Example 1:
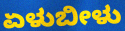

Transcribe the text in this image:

ಏಳುಬೀಳು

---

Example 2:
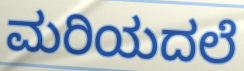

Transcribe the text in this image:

ಮರಿಯದಲೆ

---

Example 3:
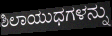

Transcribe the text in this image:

ಶಿಲಾಯುಧಗಳನ್ನು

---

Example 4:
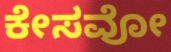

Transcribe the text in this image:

ಕೇಸವೋ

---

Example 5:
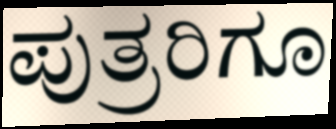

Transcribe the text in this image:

ಪುತ್ರರಿಗೂ